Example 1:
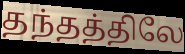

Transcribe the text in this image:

தந்தத்திலே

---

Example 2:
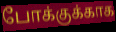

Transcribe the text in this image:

போக்குக்காக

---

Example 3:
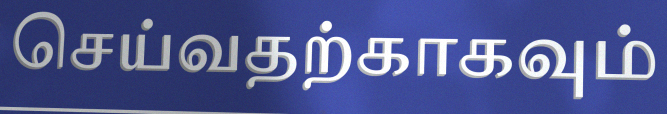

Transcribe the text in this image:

செய்வதற்காகவும்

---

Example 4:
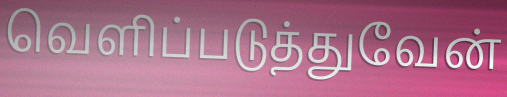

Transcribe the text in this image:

வெளிப்படுத்துவேன்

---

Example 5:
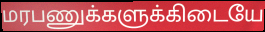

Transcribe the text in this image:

மரபணுக்களுக்கிடையே